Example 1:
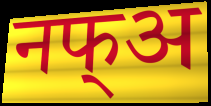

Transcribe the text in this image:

नफ्अ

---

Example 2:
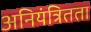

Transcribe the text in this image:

अनियंत्रितता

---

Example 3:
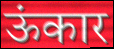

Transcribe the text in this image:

ऊंकार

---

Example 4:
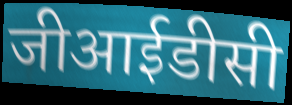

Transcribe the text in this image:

जीआईडीसी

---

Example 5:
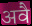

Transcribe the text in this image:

अवै